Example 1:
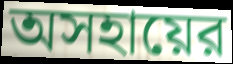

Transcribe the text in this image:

অসহায়ের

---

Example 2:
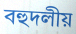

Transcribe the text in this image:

বহুদলীয়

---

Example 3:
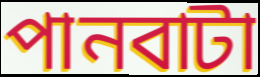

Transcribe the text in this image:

পানবাটা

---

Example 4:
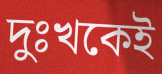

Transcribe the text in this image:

দুঃখকেই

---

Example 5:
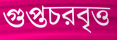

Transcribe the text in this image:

গুপ্তচরবৃত্ত